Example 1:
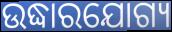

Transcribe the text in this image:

ଉଦ୍ଧାରଯୋଗ୍ୟ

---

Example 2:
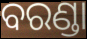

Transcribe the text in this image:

ବରଣ୍ଡା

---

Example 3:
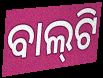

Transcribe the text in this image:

ବାଲ୍‍ଟି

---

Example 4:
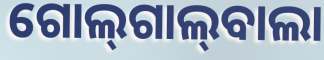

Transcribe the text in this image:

ଗୋଲ୍‍ଗାଲ୍‍ବାଲା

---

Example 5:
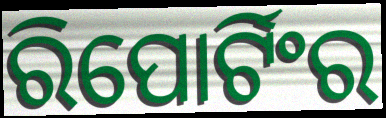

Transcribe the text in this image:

ରିପୋର୍ଟିଂର